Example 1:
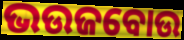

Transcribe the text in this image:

ଭଉଜବୋଉ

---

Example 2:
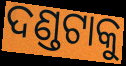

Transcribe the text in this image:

ଦଣ୍ଡଟାକୁ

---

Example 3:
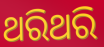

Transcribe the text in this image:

ଥରିଥରି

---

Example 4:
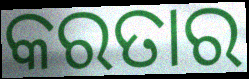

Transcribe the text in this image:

କରତାର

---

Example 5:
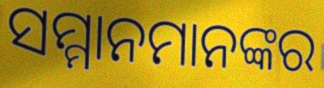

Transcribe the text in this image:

ସମ୍ମାନମାନଙ୍କର